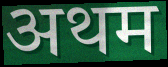
अथम